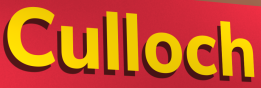
Culloch